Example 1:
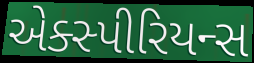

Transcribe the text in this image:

એક્સ્પીરિયન્સ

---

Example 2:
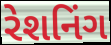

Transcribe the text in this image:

રેશનિંગ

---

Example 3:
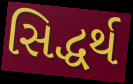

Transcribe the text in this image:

સિદ્ધર્થ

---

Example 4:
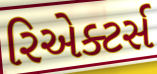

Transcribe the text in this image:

રિએક્ટર્સ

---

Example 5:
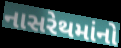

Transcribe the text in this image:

નાસરેથમાંનો